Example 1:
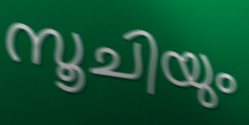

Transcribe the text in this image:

സൂചിയും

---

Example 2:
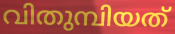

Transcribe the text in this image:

വിതുമ്പിയത്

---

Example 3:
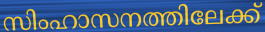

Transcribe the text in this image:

സിംഹാസനത്തിലേക്ക്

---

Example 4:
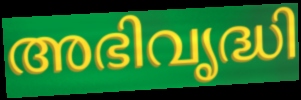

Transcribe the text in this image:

അഭിവൃദ്ധി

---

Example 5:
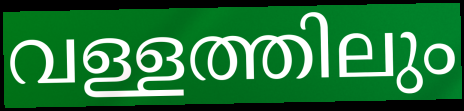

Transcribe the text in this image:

വള്ളത്തിലും